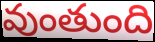
వుంతుంది